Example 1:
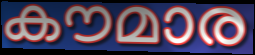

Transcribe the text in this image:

കൗമാര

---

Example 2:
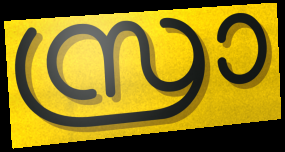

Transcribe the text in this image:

സ്രാ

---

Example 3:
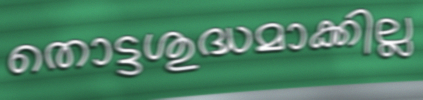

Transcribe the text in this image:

തൊട്ടശുദ്ധമാക്കില്ല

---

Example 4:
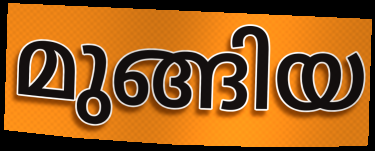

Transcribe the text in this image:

മുങ്ങിയ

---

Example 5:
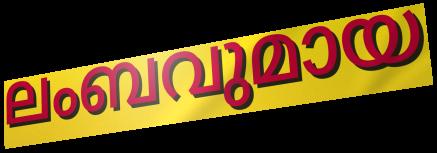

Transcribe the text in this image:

ലംബവുമായ